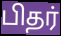
பிதர்